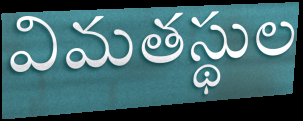
విమతస్థుల